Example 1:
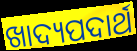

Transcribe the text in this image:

ଖାଦ୍ୟପଦାର୍ଥ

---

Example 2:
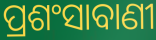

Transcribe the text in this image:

ପ୍ରଶଂସାବାଣୀ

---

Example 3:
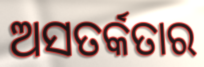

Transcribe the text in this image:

ଅସତର୍କତାର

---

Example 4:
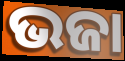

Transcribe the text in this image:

ଭଜା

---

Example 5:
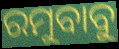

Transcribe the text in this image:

ରମୁବାବୁ